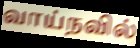
வாய்நவில்